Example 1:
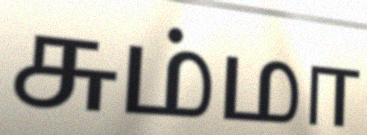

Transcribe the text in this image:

சும்மா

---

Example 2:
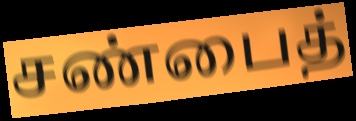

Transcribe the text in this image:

சண்பைத்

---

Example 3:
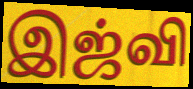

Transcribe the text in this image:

இஜ்வி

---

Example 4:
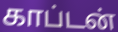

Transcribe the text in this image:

காப்டன்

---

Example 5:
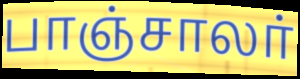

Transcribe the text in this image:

பாஞ்சாலர்